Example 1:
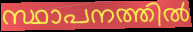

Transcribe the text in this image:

സ്ഥാപനത്തിൽ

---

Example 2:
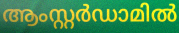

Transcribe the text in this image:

ആംസ്റ്റർഡാമിൽ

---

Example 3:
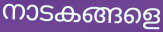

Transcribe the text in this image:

നാടകങ്ങളെ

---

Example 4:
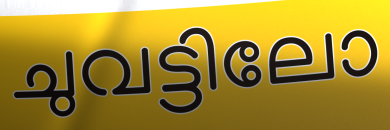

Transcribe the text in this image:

ചുവട്ടിലോ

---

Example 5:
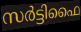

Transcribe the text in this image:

സർട്ടിഫൈ